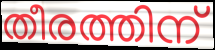
തീരത്തിന്